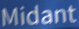
Midant